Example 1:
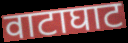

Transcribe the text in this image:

वाटाघाट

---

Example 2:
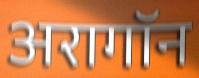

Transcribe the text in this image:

अरागॉन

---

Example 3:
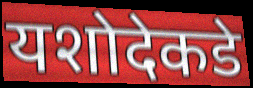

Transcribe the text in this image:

यशोदेकडे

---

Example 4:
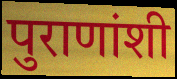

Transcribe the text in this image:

पुराणांशी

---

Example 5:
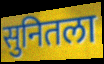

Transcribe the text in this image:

सुनितला